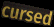
cursed